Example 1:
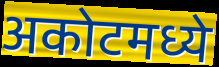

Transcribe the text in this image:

अकोटमध्ये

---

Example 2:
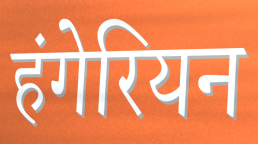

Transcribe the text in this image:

हंगेरियन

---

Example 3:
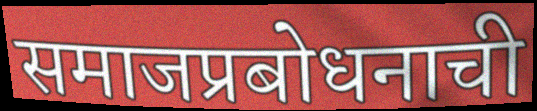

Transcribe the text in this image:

समाजप्रबोधनाची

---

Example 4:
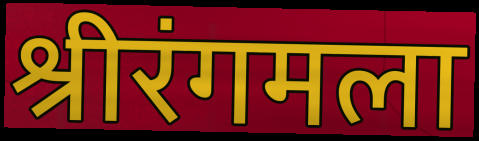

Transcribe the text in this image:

श्रीरंगमला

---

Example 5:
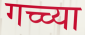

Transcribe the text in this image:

गच्च्या